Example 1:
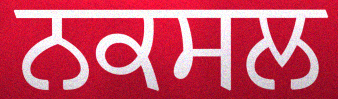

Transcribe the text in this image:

ਨਕਸਲ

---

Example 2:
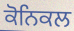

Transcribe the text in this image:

ਕੋਨਿਕਲ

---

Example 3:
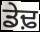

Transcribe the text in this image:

ਡੇਢ਼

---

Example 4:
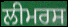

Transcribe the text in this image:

ਲੀਮਰਸ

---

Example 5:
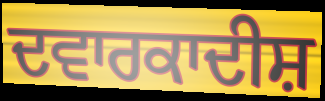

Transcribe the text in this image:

ਦਵਾਰਕਾਦੀਸ਼